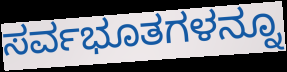
ಸರ್ವಭೂತಗಳನ್ನೂ